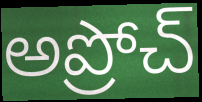
అప్రోచ్